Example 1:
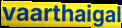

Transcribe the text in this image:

vaarthaigal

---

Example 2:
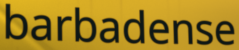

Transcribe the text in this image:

barbadense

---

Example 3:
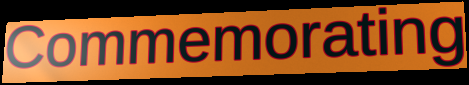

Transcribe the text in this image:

Commemorating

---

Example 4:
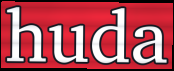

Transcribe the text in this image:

huda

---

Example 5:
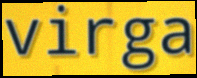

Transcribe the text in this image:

virga